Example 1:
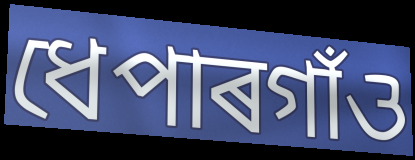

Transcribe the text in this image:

ধেপাৰগাঁও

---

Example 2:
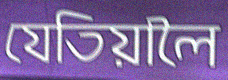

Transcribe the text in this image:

যেতিয়ালৈ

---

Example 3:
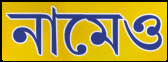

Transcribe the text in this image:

নামেও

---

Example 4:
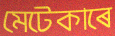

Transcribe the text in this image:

মেটেকাৰে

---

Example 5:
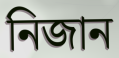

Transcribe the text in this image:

নিজান